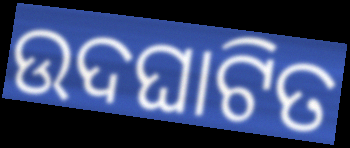
ଉଦଘାଟିତ